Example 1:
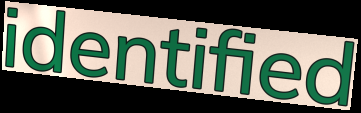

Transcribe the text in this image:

identified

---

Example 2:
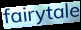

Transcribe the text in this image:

fairytale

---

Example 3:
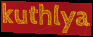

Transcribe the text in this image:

kuthlya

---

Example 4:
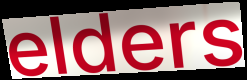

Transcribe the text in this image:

elders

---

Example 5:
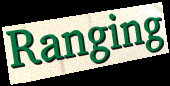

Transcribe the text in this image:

Ranging